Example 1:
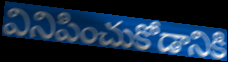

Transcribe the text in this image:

వినిపించుకోడానికి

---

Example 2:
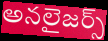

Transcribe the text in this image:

అనలైజర్స్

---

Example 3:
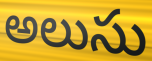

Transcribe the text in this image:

అలుసు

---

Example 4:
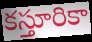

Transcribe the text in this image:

కస్తూరికా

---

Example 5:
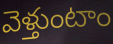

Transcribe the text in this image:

వెళ్తుంటాం